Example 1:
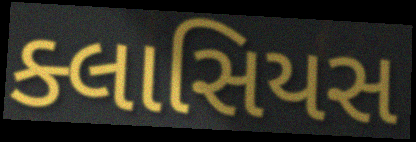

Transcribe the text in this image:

ક્લાસિયસ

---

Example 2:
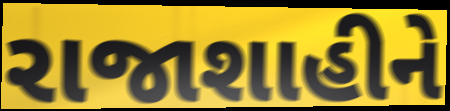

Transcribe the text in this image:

રાજાશાહીને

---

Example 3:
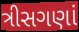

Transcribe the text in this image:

ત્રીસગણાં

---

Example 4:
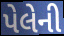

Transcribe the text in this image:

પેલેની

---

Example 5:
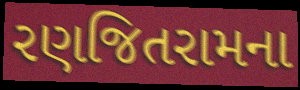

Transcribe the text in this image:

રણજિતરામના